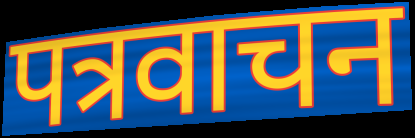
पत्रवाचन